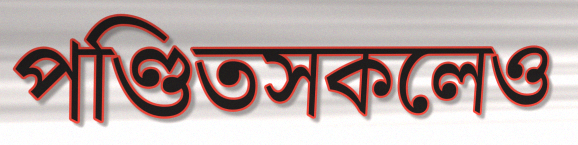
পণ্ডিতসকলেও